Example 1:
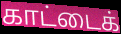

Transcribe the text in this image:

காட்டைக்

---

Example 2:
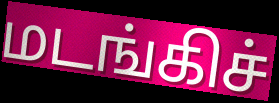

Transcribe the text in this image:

மடங்கிச்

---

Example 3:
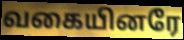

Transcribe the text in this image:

வகையினரே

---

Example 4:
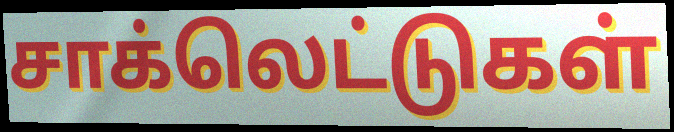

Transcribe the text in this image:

சாக்லெட்டுகள்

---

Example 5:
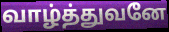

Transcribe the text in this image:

வாழ்த்துவனே